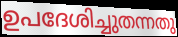
ഉപദേശിച്ചുതന്നതു